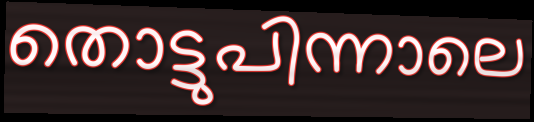
തൊട്ടുപിന്നാലെ